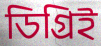
ডিগ্রিই